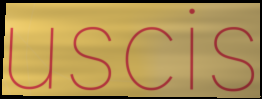
uscis